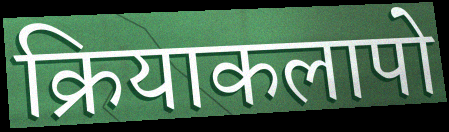
क्रियाकलापो